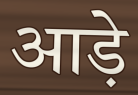
आड़े